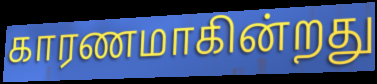
காரணமாகின்றது